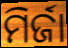
ମିର୍ଜା